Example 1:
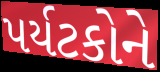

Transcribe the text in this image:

પર્યટકોને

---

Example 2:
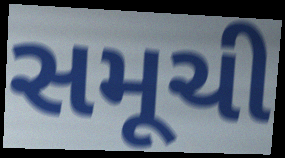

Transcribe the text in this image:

સમૂચી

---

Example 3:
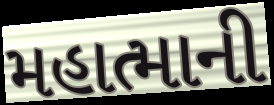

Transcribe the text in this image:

મહાત્માની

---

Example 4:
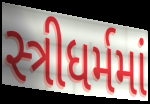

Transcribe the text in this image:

સ્ત્રીધર્મમાં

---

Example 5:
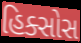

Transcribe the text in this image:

હિક્સોસ